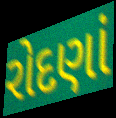
રોદણાં